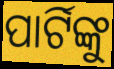
ପାର୍ଟିଙ୍କୁ